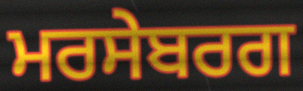
ਮਰਸੇਬਰਗ